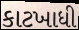
કાટખાધી